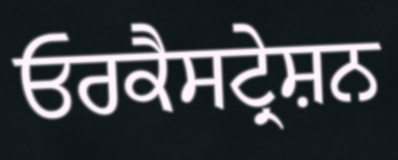
ਓਰਕੈਸਟ੍ਰੇਸ਼ਨ